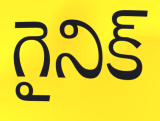
గైనిక్